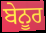
ਬੇਨੂਰ